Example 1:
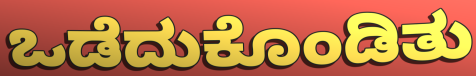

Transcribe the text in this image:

ಒಡೆದುಕೊಂಡಿತು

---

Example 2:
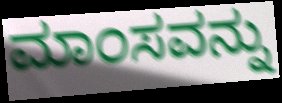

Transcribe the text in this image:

ಮಾಂಸವನ್ನು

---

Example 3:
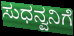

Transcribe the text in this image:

ಸುಧನ್ವನಿಗೆ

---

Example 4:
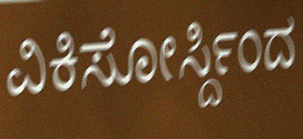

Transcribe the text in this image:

ವಿಕಿಸೋರ್ಸ್ದಿಂದ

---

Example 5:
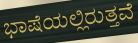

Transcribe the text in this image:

ಭಾಷೆಯಲ್ಲಿರುತ್ತವೆ